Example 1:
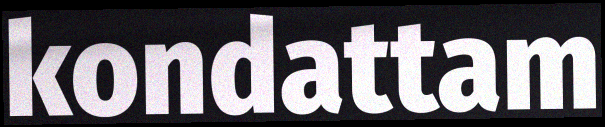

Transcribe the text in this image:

kondattam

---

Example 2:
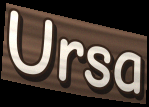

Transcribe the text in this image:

Ursa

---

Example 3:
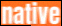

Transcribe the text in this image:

native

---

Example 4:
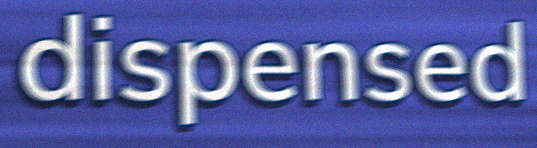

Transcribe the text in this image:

dispensed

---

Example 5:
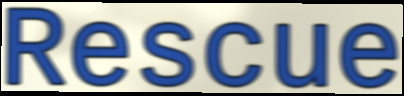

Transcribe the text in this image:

Rescue